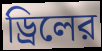
ড্রিলের